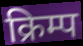
क्रिम्प